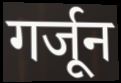
गर्जून